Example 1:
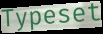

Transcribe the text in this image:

Typeset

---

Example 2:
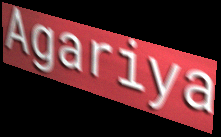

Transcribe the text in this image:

Agariya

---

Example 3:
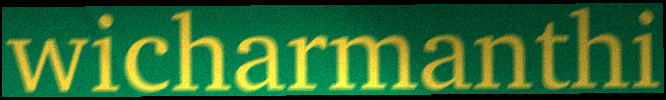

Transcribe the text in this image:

wicharmanthi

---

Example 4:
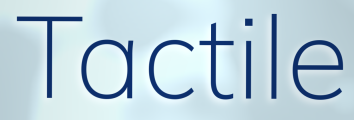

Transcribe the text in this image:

Tactile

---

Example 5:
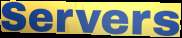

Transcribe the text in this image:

Servers